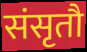
संसृतौ